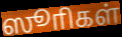
ஸூரிகள்